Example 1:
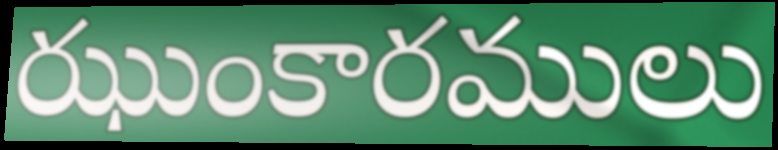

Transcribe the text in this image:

ఝుంకారములు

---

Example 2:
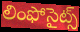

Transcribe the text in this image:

లింఫోసైట్స్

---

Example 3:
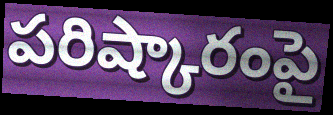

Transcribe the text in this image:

పరిష్కారంపై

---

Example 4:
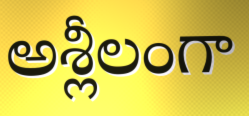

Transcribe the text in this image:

అశ్లీలంగా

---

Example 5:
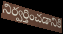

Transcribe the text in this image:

నిర్వర్తించడానికి